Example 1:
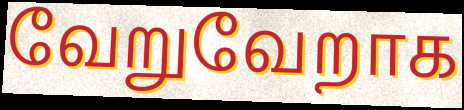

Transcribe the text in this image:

வேறுவேறாக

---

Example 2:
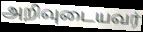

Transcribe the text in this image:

அறிவுடையவர்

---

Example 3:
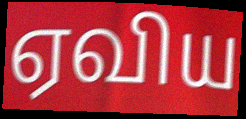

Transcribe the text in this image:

ஏவிய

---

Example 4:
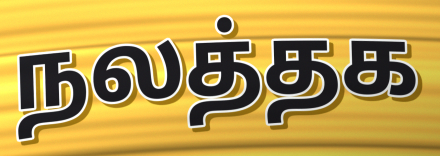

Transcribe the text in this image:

நலத்தக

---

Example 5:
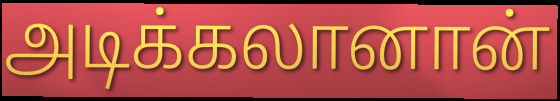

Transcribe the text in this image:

அடிக்கலானான்